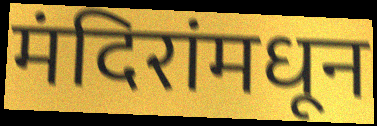
मंदिरांमधून